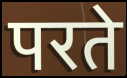
परते